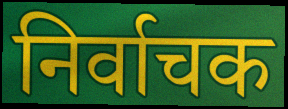
निर्वाचक